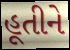
હૂતીને